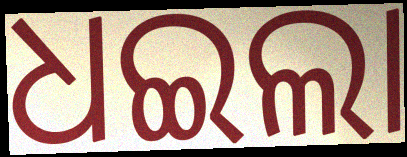
ଧଇଲା